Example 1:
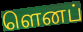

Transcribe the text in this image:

ளெனப்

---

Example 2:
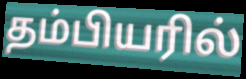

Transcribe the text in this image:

தம்பியரில்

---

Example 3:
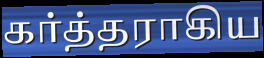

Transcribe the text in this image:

கர்த்தராகிய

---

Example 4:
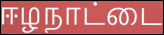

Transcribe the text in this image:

ஈழநாட்டை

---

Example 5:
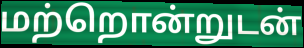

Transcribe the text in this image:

மற்றொன்றுடன்